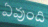
ఏవుంది